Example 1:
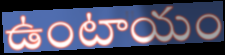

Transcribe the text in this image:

ఉంటాయం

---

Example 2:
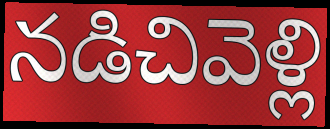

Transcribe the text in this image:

నడిచివెళ్లి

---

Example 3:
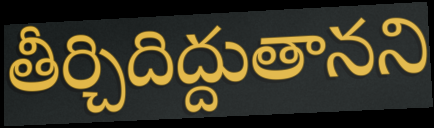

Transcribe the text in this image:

తీర్చిదిద్దుతానని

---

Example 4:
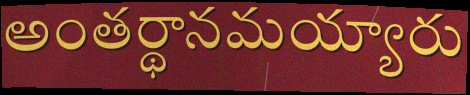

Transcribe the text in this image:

అంతర్థానమయ్యారు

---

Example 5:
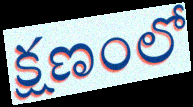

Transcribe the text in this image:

క్షణంలో